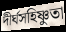
দীর্ঘসহিষ্ণুতা